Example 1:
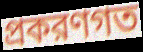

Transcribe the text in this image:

প্রকরণগত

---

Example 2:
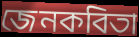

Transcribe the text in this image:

জেনকবিতা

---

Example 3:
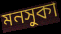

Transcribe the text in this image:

মনসুকা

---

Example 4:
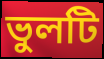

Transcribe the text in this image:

ভুলটি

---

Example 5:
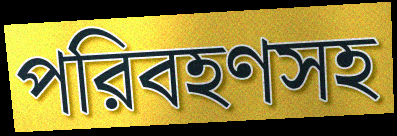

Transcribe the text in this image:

পরিবহণসহ